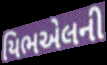
યિભએલની